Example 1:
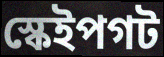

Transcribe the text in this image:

স্কেইপগট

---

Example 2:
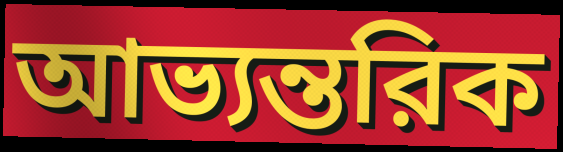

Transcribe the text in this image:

আভ্যন্তরিক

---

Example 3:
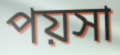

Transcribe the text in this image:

পয়সা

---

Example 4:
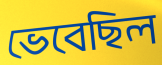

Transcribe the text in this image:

ভেবেছিল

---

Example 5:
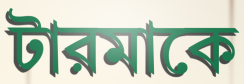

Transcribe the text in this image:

টারমাকে